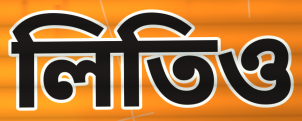
লিতিও